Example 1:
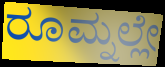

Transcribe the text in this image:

ರೂಮ್ನಲ್ಲೇ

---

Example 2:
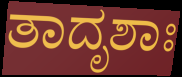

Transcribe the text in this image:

ತಾದೃಶಾಃ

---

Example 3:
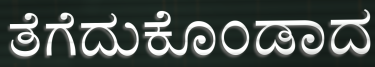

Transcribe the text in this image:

ತೆಗೆದುಕೊಂಡಾದ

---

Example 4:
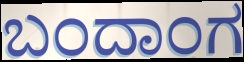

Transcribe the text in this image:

ಬಂದಾಂಗ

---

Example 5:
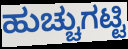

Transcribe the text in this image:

ಹುಚ್ಚುಗಟ್ಟಿ